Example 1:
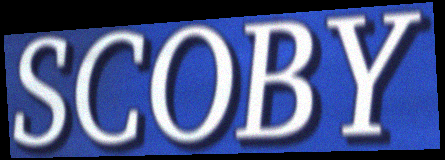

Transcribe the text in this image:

SCOBY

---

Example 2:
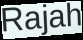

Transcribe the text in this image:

Rajah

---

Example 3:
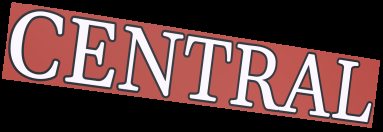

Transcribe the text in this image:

CENTRAL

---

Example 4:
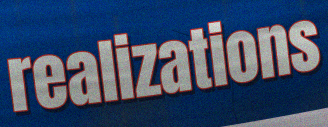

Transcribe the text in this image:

realizations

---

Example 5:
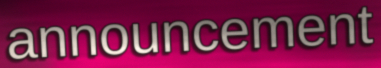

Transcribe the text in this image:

announcement